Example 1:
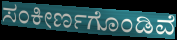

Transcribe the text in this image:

ಸಂಕೀರ್ಣಗೊಂಡಿವೆ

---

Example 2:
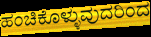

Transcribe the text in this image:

ಹಂಚಿಕೊಳ್ಳುವುದರಿಂದ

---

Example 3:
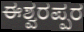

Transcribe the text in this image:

ಈಶ್ವರಪ್ಪರ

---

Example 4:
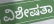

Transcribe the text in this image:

ವಿಶೇಷತಾ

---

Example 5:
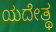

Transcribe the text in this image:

ಯದೇತ್ಥ